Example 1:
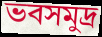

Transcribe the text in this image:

ভবসমুদ্র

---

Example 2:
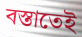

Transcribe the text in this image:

বস্তাতেই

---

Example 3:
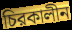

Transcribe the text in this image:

চিরকালীন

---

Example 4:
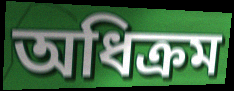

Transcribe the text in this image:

অধিক্রম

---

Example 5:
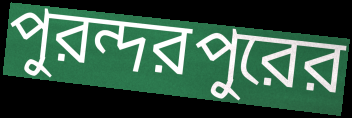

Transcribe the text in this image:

পুরন্দরপুরের